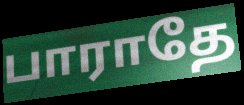
பாராதே